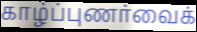
காழ்ப்புணர்வைக்